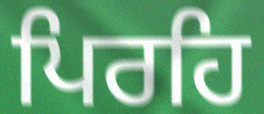
ਪਿਰਹਿ